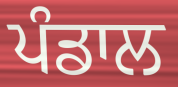
ਪੰਡਾਲ